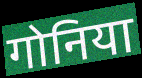
गोनिया